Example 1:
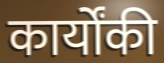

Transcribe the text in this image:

कार्योंकी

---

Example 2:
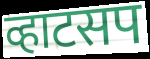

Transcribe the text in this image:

व्हाटसप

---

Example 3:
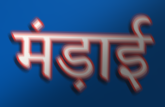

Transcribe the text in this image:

मंड़ाई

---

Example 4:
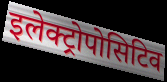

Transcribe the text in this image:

इलेक्ट्रोपोसिटिव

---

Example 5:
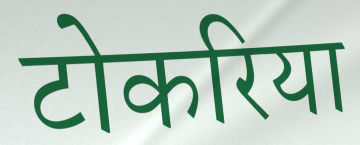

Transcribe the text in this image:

टोकरिया